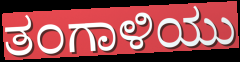
ತಂಗಾಳಿಯು